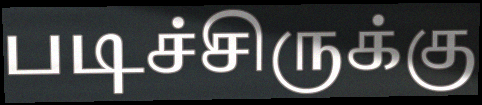
படிச்சிருக்கு